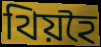
থিয়হৈ